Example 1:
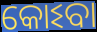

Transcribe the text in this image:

କୋଽବା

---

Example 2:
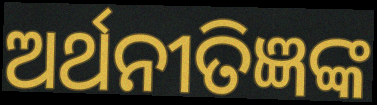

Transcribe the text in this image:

ଅର୍ଥନୀତିଜ୍ଞଙ୍କ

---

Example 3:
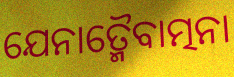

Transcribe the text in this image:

ଯେନାତ୍ମୈବାତ୍ମନା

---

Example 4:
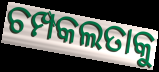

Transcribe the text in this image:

ଚମ୍ପକଲତାକୁ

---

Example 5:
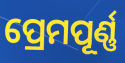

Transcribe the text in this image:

ପ୍ରେମପୂର୍ଣ୍ଣ